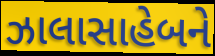
ઝાલાસાહેબને